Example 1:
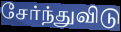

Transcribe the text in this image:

சேர்ந்துவிடு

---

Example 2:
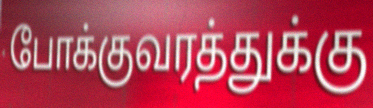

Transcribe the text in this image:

போக்குவரத்துக்கு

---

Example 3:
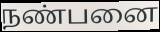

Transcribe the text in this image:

நண்பனை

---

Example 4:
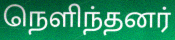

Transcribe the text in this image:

நெளிந்தனர்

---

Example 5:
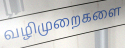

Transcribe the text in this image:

வழிமுறைகளை